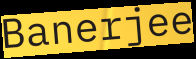
Banerjee